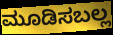
ಮೂಡಿಸಬಲ್ಲ